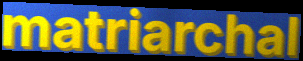
matriarchal